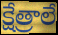
క్షేత్రాలే